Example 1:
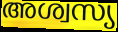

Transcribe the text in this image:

അശ്വസ്യ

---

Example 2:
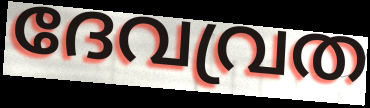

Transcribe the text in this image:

ദേവവ്രത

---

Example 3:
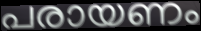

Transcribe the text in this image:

പരായണം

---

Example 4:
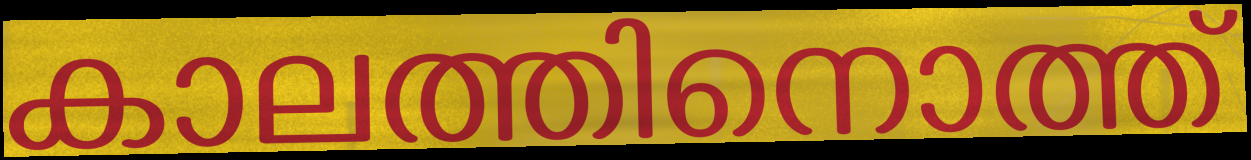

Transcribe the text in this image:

കാലത്തിനൊത്ത്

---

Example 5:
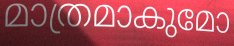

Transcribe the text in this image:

മാത്രമാകുമോ